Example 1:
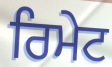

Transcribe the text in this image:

ਰਿਮੇਟ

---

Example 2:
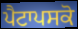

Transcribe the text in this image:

ਪੈਟਾਪਸਕੋ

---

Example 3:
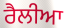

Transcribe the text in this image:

ਰੈਲੀਆ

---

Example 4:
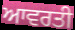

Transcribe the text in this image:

ਆਵਰਤੀ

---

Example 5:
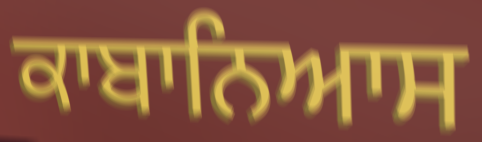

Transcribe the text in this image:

ਕਾਬਾਨਿਆਸ